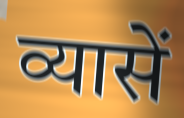
व्यासें